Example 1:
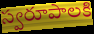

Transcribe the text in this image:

స్వరూపాలకి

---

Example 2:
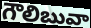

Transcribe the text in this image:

గౌలిబువా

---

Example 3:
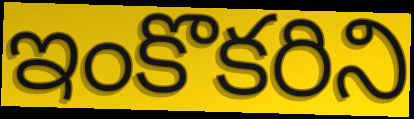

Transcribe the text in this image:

ఇంకొకరిని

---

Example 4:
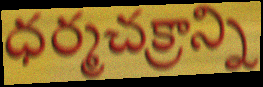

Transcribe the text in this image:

ధర్మచక్రాన్ని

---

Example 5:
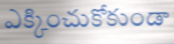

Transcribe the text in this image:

ఎక్కించుకోకుండా